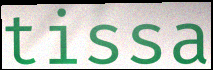
tissa